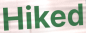
Hiked